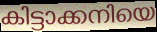
കിട്ടാക്കനിയെ